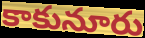
కాకునూరు